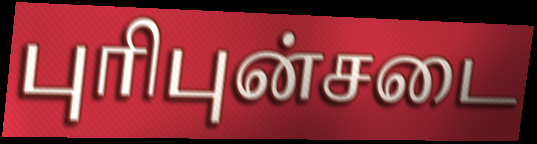
புரிபுன்சடை